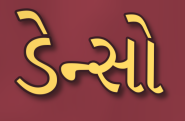
ડેન્સો